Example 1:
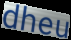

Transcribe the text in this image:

dheu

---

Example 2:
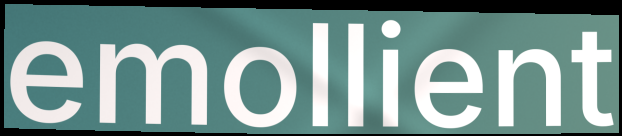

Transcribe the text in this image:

emollient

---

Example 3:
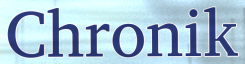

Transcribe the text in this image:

Chronik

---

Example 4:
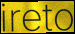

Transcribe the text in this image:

ireto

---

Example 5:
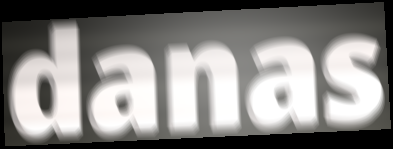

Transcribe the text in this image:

danas